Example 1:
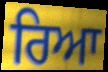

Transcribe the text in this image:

ਰਿਆ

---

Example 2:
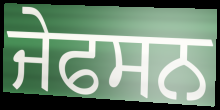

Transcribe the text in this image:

ਜੇਫਸਨ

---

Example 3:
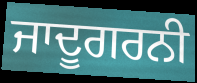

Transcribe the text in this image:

ਜਾਦੂਗਰਨੀ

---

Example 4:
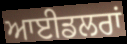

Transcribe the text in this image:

ਆਈਡਲਰਾਂ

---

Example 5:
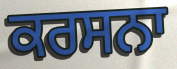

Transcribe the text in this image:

ਕਰਸਨਾ